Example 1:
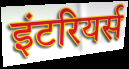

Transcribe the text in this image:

इंटरियर्स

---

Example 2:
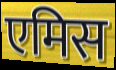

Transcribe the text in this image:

एमिस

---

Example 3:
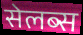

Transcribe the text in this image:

सेलब्स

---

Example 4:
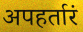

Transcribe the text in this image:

अपहर्तारं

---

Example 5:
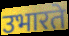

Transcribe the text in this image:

उभारते